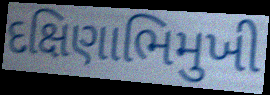
દક્ષિણાભિમુખી